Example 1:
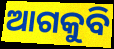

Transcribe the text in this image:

ଆଗକୁବି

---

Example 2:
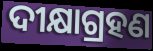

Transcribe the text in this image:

ଦୀକ୍ଷାଗ୍ରହଣ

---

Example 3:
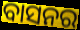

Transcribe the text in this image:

ବାସନର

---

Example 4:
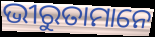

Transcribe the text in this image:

ଭୀରୁତାମାନେ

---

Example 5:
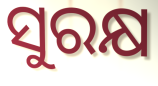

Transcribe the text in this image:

ସୁରକ୍ଷ